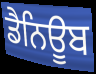
ਡੈਨਿਊਬ